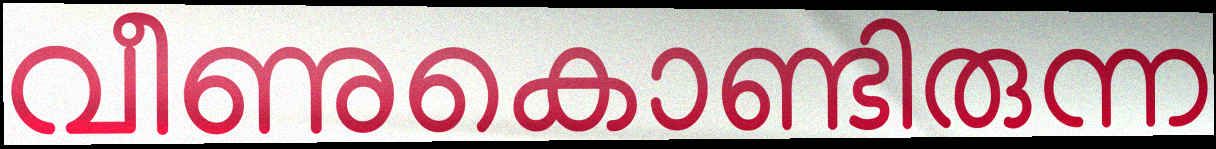
വീണുകൊണ്ടിരുന്ന